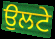
ਉਲਟੇ